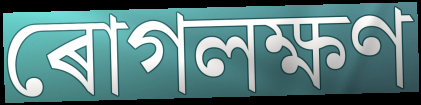
ৰোগলক্ষণ